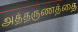
அத்தருணத்தை